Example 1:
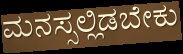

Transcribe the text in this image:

ಮನಸ್ಸಲ್ಲಿಡಬೇಕು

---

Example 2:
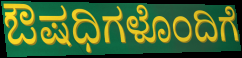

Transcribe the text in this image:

ಔಷಧಿಗಳೊಂದಿಗೆ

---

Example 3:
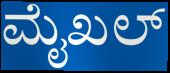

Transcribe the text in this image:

ಮೈಖಲ್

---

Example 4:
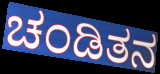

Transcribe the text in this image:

ಚಂಡಿತನ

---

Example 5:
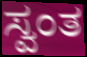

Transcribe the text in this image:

ಸ್ವಂತ